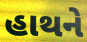
હાથને